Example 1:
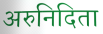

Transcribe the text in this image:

अरुनिदिता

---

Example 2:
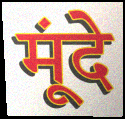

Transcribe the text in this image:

मूंदे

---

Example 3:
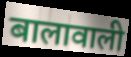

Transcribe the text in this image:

बालावाली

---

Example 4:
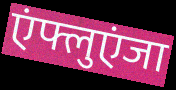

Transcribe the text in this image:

एंफ्लुएंजा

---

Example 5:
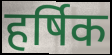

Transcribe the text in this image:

हर्षिक